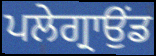
ਪਲੇਗ੍ਰਾਉਂਡ